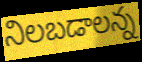
నిలబడాలన్న